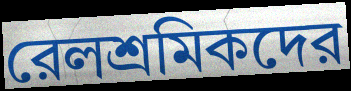
রেলশ্রমিকদের